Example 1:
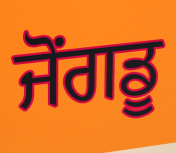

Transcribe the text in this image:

ਜੋਂਗਡੂ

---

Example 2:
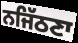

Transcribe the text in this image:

ਨਜਿੱਠਣਾ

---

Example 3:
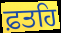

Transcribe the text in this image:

ਫ਼ਤਹਿ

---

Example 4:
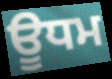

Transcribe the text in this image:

ਊਧਮ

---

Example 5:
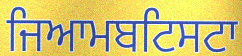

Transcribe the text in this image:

ਜਿਆਮਬਟਿਸਟਾ